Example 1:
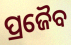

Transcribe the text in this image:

ପ୍ରଜୈବ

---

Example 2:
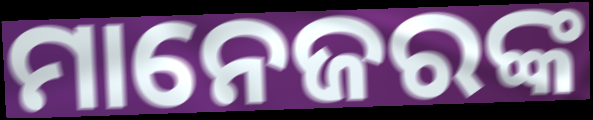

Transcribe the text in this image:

ମାନେଜରଙ୍କ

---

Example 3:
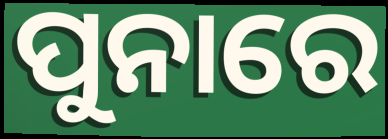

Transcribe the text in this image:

ପୁନାରେ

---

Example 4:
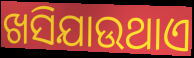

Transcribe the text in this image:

ଖସିଯାଉଥାଏ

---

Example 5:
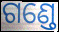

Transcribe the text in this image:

ଗଣ୍ଡେ